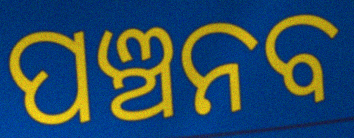
ପଞ୍ଚନବ